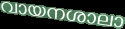
വായനശാലാ